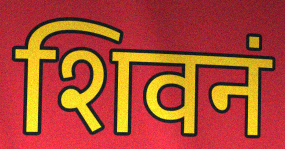
शिवनं